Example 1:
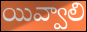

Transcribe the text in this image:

యివ్వాలి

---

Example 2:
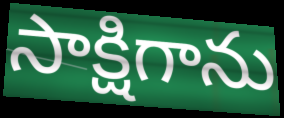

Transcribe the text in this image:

సాక్షిగాను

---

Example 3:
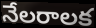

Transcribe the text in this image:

నేలరాలక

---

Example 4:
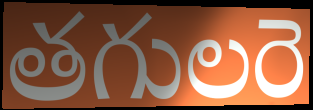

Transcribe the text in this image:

తగులరె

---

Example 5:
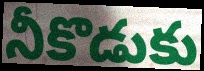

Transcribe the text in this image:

నీకొడుకు